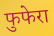
फुफेरा